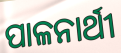
ପାଳନାର୍ଥୀ